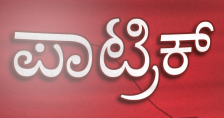
ಪಾಟ್ರಿಕ್